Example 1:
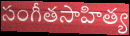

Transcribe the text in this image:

సంగీతసాహిత్య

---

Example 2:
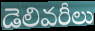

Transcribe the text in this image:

డెలివరీలు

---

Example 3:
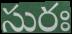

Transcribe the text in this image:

సురః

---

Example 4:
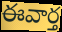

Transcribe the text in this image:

ఈవార్త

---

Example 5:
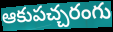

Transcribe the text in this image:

ఆకుపచ్చరంగు